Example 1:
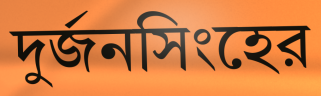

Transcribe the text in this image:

দুর্জনসিংহের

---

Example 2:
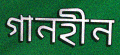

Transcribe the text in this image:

গানহীন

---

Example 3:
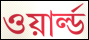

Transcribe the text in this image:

ওয়ার্ল্ড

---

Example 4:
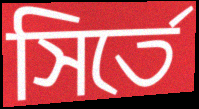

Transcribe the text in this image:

সির্তে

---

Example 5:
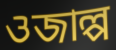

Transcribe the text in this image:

ওজাল্প